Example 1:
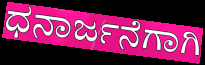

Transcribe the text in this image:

ಧನಾರ್ಜನೆಗಾಗಿ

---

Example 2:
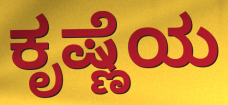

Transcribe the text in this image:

ಕೃಷ್ಣೆಯ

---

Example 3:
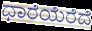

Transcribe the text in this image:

ಧಾರೆಯೆರೆದೆ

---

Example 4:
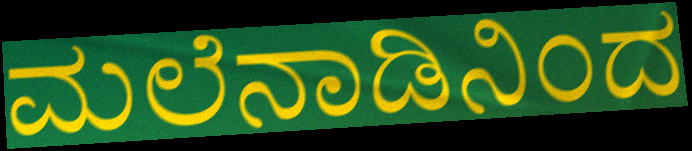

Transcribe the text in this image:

ಮಲೆನಾಡಿನಿಂದ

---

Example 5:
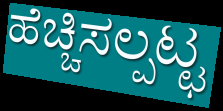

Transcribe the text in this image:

ಹೆಚ್ಚಿಸಲ್ಪಟ್ಟ